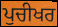
ਪੁਚੀਖਰ